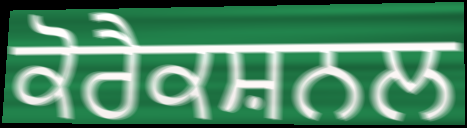
ਕੋਰੈਕਸ਼ਨਲ